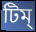
টিম্